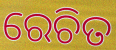
ରେଚିତ